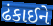
ઢંકાઈને